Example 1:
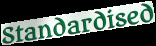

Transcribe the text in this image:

Standardised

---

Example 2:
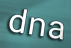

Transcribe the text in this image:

dna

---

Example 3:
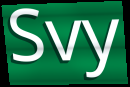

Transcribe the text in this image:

Svy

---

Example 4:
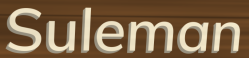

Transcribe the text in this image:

Suleman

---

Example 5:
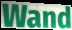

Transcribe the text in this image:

Wand